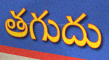
తగుదు